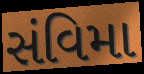
સંવિમા